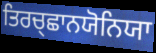
ਤਿਰਚ੍ਛਾਨਯੋਨਿਯਾ